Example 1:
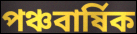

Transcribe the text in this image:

পঞ্চবার্ষিক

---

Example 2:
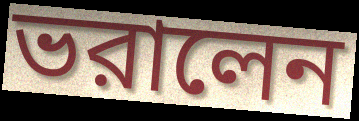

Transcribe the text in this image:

ভরালেন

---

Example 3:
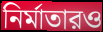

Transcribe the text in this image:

নির্মাতারও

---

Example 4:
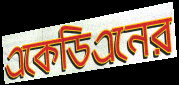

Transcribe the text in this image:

একেডিএনের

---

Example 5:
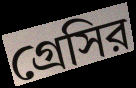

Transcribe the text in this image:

গ্রেসির